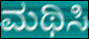
ಮಥಿಸಿ